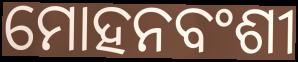
ମୋହନବଂଶୀ